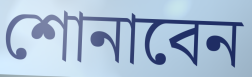
শোনাবেন